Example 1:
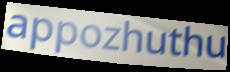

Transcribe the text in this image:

appozhuthu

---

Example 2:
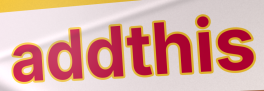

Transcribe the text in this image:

addthis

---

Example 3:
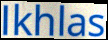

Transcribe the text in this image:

Ikhlas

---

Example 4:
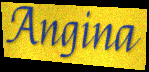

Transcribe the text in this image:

Angina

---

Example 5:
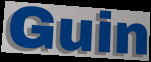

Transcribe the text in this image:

Guin